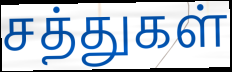
சத்துகள்